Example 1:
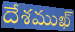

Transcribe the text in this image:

దేశముఖ్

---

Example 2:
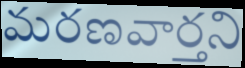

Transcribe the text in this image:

మరణవార్తని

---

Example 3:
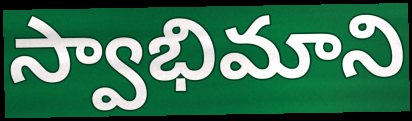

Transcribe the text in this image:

స్వాభిమాని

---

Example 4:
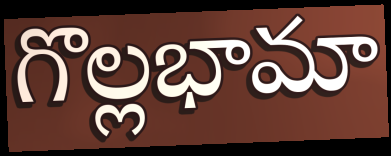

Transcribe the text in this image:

గొల్లభామా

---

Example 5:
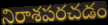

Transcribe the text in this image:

నిరాశపరచడం